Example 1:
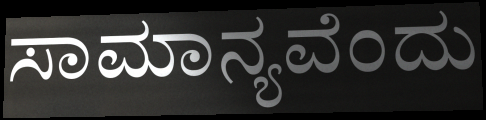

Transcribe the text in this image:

ಸಾಮಾನ್ಯವೆಂದು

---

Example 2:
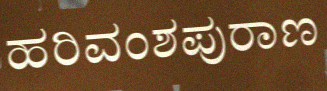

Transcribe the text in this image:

ಹರಿವಂಶಪುರಾಣ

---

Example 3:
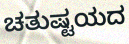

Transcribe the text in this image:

ಚತುಷ್ಟಯದ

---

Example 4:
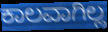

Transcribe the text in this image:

ಕಾಲವಾಗಿಲ್ಲ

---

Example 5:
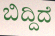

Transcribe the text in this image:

ಬಿದ್ದಿದೆ